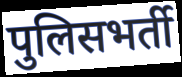
पुलिसभर्ती